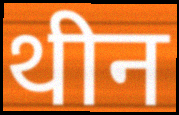
थीन